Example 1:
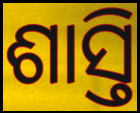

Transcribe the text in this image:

ଶାସ୍ତି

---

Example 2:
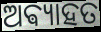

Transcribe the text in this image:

ଅଵ୍ୟାହତ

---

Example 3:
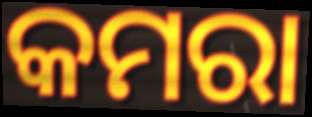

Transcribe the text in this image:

କମରା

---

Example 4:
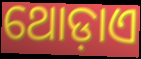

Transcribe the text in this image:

ଥୋଡ଼ାଏ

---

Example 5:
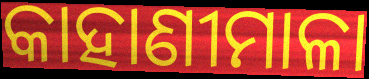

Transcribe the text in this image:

କାହାଣୀମାଳା